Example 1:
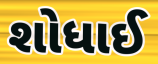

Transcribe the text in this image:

શોધાઈ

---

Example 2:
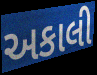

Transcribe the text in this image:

અકાલી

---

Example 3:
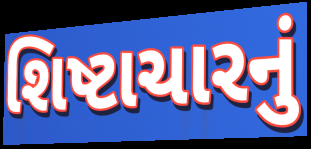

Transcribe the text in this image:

શિષ્ટાચારનું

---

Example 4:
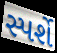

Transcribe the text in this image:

સ્પર્શે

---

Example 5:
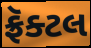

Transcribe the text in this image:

ફ્રૅક્ટલ